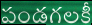
పండగలకీ